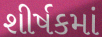
શીર્ષકમાં